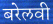
बरेलवी